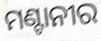
ମଣ୍ଟାନୀର